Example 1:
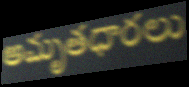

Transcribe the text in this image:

అమృతధారలు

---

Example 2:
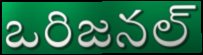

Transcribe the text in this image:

ఒరిజనల్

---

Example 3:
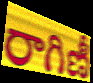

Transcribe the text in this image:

రాగిణీ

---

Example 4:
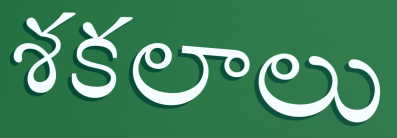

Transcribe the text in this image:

శకలాలు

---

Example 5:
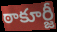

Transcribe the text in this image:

ఠాకూర్జీ